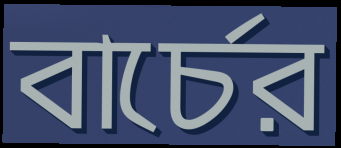
বার্চের